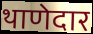
थाणेदार